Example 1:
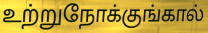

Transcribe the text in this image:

உற்றுநோக்குங்கால்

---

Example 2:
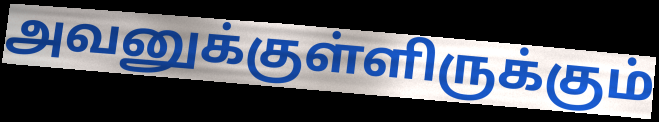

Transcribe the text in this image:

அவனுக்குள்ளிருக்கும்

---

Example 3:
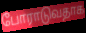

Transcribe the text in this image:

போராடுவதாக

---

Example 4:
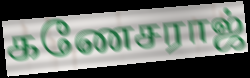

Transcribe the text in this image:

கணேசராஜ்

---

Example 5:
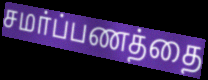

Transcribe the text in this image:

சமர்ப்பணத்தை